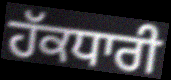
ਹੱਕਧਾਰੀ